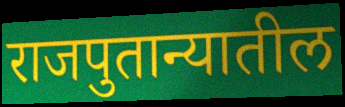
राजपुतान्यातील